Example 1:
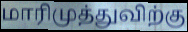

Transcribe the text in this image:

மாரிமுத்துவிற்கு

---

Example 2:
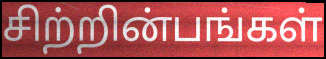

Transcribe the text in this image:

சிற்றின்பங்கள்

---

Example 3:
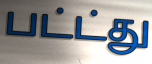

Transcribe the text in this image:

பட்ட்து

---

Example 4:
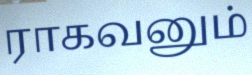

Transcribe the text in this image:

ராகவனும்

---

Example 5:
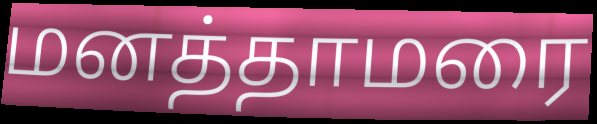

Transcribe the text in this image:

மனத்தாமரை